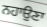
ਨਹਾਉਣਾ